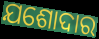
ଯଶୋଦାର